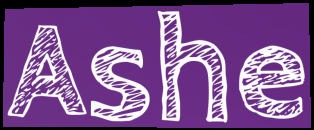
Ashe